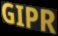
GIPR